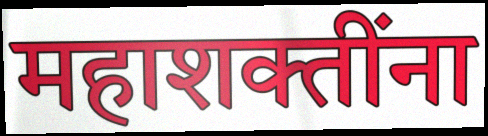
महाशक्तींना